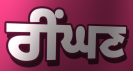
ਰੀਂਘਣ